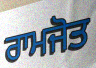
ਰਾਮਜੋਤ